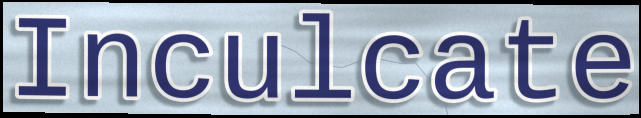
Inculcate